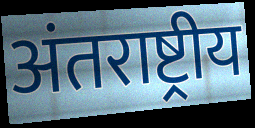
अंतराष्ट्रीय